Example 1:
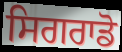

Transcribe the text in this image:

ਸਿਗਰਾਡੋ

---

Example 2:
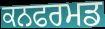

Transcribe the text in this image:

ਕਨਫਰਮਡ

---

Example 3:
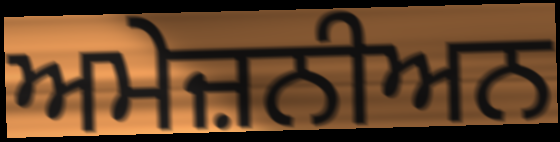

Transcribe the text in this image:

ਅਮੇਜ਼ਨੀਅਨ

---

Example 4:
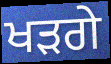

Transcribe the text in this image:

ਖੜਗੇ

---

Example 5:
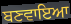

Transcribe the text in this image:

ਬਣਵਾਇਆ